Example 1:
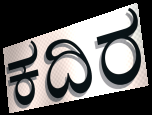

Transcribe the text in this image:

ಕದಿರ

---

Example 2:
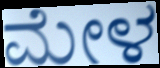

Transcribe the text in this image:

ಮೇಳ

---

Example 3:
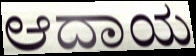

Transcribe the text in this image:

ಆದಾಯ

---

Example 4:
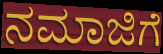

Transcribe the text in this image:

ನಮಾಜಿಗೆ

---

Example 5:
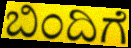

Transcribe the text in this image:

ಬಿಂದಿಗೆ